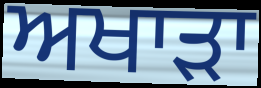
ਅਖਾੜਾ